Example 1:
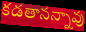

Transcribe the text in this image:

కడతానన్నావు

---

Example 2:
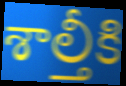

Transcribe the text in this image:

శాల్తీకి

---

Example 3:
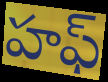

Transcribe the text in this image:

హఫ్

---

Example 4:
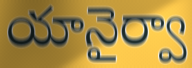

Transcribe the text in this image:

యానైర్వా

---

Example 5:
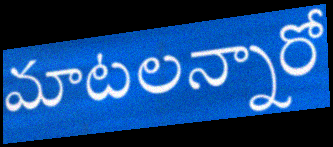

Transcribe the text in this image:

మాటలన్నారో